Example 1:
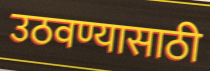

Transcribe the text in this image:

उठवण्यासाठी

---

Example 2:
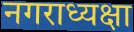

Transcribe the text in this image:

नगराध्यक्षा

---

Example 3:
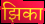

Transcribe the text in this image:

झिका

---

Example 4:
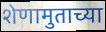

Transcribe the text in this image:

शेणामुताच्या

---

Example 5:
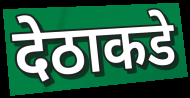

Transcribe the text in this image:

देठाकडे